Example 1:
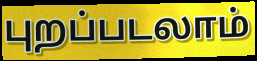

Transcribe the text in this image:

புறப்படலாம்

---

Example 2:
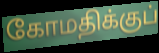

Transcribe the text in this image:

கோமதிக்குப்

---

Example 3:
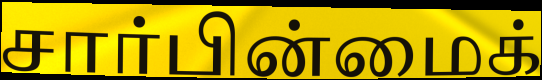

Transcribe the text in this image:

சார்பின்மைக்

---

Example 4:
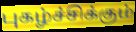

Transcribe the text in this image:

புகழ்ச்சிக்கும்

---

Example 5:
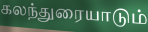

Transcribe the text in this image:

கலந்துரையாடும்